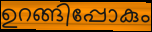
ഉറങ്ങിപ്പോകും